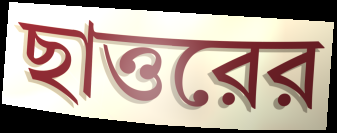
ছাত্তরের